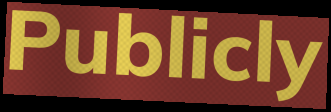
Publicly